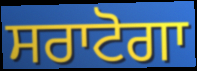
ਸਰਾਟੋਗਾ